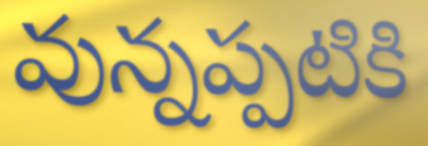
వున్నప్పటికి